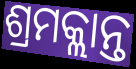
ଶ୍ରମକ୍ଲାନ୍ତ